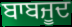
ਬਾਬਜੂਦ